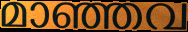
മാഞ്ഞവ